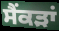
ਸੈਂਕੜਾਂ